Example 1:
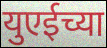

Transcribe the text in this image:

युएईच्या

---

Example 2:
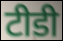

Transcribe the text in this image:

टीडी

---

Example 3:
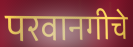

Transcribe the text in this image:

परवानगीचे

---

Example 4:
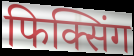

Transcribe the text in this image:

फिक्सिंग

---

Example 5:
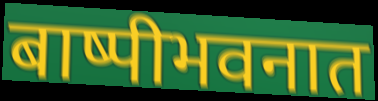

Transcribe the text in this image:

बाष्पीभवनात